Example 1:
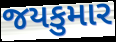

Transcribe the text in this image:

જયકુમાર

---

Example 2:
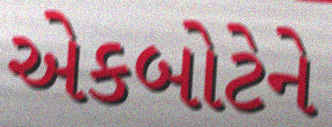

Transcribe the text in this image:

એકબોટેને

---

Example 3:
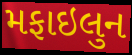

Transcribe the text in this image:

મફાઇલુન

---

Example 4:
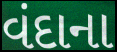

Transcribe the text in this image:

વંદાના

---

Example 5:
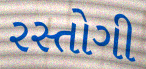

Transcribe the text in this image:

રસ્તોગી